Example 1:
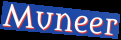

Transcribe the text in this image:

Muneer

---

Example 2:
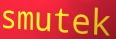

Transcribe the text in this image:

smutek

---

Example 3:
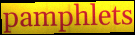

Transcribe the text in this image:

pamphlets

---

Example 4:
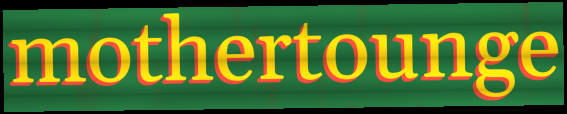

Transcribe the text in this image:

mothertounge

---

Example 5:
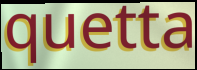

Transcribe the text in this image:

quetta